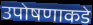
उपोषणाकडे